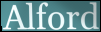
Alford